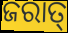
ଜରାତ୍